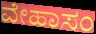
ವೇಹಾಸಂ